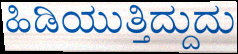
ಹಿಡಿಯುತ್ತಿದ್ದುದು